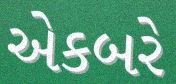
એકબરે